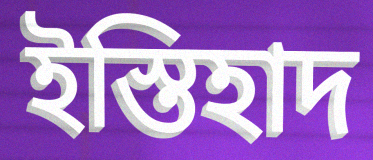
ইস্তিহাদ